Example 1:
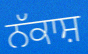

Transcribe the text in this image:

ਨੱਕਾਸ਼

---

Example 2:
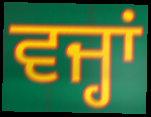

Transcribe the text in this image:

ਵਜ੍ਹਾਂ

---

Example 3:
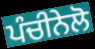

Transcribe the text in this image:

ਪੰਚੀਨੇਲੋ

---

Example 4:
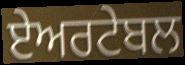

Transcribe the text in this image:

ਏਅਰਟੇਬਲ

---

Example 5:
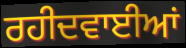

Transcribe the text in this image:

ਰਹੀਦਵਾਈਆਂ